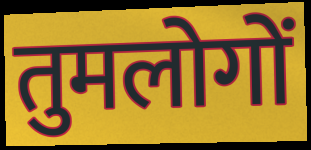
तुमलोगों